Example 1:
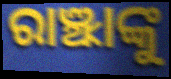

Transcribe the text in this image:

ରାଞ୍ଝାଙ୍କୁ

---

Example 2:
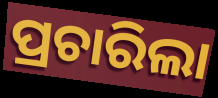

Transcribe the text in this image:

ପ୍ରଚାରିଲା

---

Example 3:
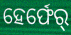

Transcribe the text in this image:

ହେର୍ଫେର୍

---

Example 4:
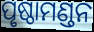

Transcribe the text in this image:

ପୃଷ୍ଠାମଣ୍ଡନ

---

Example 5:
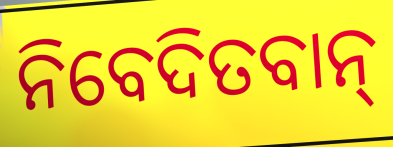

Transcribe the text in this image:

ନିବେଦିତବାନ୍